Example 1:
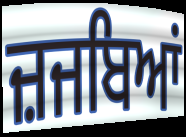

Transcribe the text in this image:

ਜ਼ਜਬਿਆਂ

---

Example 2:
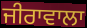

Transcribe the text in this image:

ਜੀਰਾਵਾਲਾ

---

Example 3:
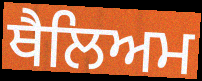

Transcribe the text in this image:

ਥੈਲਿਅਮ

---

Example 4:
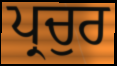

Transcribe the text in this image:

ਪ੍ਰਚੁਰ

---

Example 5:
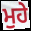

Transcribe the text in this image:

ਮੁਹੇ